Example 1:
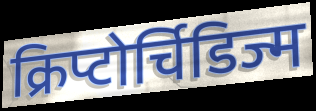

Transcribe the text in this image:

क्रिप्टोर्चिडिज्म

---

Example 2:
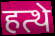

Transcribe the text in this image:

हत्थे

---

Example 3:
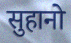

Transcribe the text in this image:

सुहानो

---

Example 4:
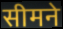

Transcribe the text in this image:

सीमने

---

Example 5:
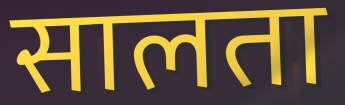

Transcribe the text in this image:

सालता